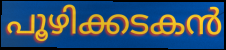
പൂഴിക്കടകൻ